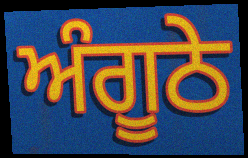
ਅੰਗੂਠੇ